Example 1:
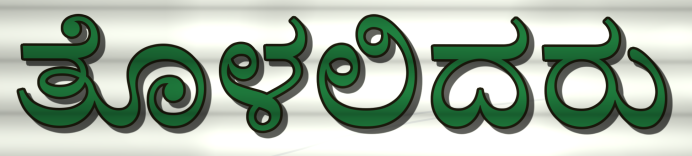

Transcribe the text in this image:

ತೊಳಲಿದರು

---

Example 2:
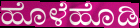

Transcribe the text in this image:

ಹೊಳೆಹೊಡಿ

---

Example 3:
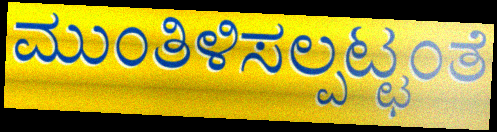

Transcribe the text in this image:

ಮುಂತಿಳಿಸಲ್ಪಟ್ಟಂತೆ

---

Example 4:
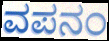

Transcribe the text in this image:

ವಪನಂ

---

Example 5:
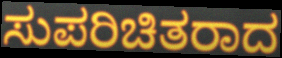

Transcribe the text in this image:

ಸುಪರಿಚಿತರಾದ